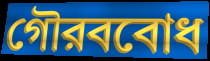
গৌরববোধ